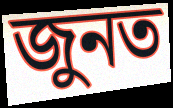
জুনত